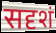
सदृशं